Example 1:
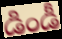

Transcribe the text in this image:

డిండీ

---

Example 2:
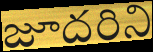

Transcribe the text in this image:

జూదరిని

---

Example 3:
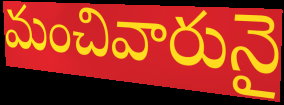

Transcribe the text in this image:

మంచివారునై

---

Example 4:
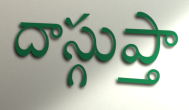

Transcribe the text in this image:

దాస్గుప్తా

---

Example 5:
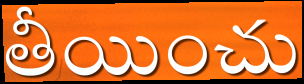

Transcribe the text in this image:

తీయించు